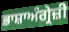
ਭਾਸ਼ਾਅੰਗ੍ਰੇਜ਼ੀ